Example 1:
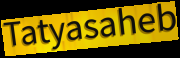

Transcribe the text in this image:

Tatyasaheb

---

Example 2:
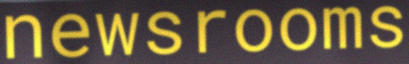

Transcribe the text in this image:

newsrooms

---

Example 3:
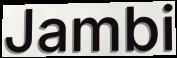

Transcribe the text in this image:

Jambi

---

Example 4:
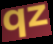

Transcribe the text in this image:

qz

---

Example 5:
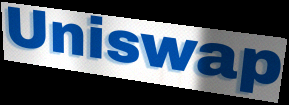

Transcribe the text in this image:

Uniswap